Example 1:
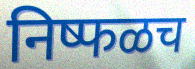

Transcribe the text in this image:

निष्फळच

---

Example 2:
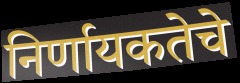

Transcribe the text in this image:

निर्णायकतेचे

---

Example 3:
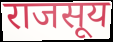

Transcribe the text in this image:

राजसूय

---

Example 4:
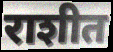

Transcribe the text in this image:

राशीत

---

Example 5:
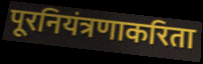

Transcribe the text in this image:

पूरनियंत्रणाकरिता